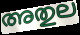
അതുല